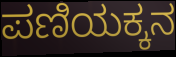
ಪಣಿಯಕ್ಕನ